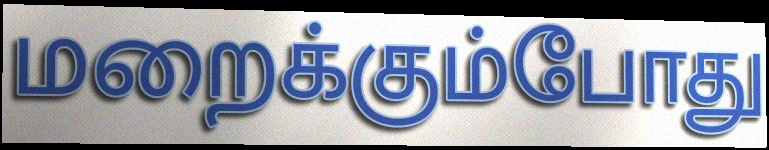
மறைக்கும்போது